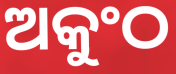
ଅକୁଂଠ